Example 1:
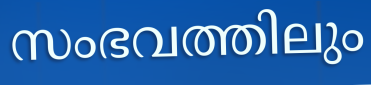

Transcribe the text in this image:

സംഭവത്തിലും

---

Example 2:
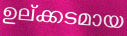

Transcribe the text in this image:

ഉല്ക്കടമായ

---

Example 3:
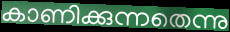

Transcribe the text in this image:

കാണിക്കുന്നതെന്നു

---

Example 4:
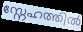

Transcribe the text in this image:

സ്നേഹത്തിൽ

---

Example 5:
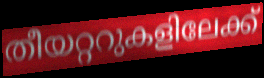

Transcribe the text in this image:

തീയറ്ററുകളിലേക്ക്